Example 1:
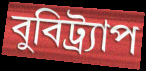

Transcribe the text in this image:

বুবিট্র্যাপ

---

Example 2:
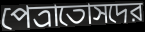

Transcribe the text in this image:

পেত্রাতোসদের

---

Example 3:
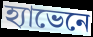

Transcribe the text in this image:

হ্যাভেনে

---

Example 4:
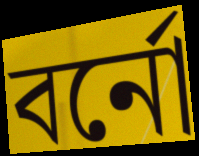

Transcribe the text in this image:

বর্নো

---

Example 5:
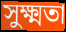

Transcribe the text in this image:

সুক্ষ্মতা